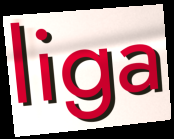
liga